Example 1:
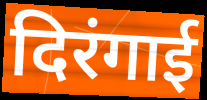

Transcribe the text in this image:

दिरंगाई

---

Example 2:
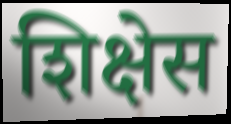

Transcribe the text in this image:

शिक्षेस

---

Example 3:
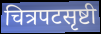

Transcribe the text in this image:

चित्रपटसृष्टी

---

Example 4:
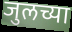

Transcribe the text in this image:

जुलच्या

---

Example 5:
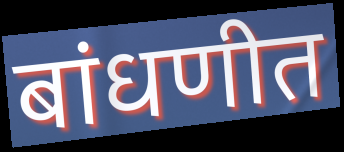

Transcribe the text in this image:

बांधणीत